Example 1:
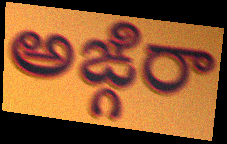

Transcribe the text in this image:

అఙ్గిరా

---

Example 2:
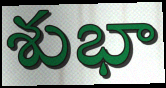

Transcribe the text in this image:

శుభా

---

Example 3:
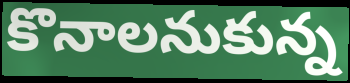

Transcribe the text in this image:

కొనాలనుకున్న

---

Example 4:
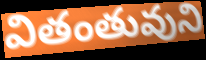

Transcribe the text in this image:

వితంతువుని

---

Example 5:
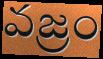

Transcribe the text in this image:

వజ్రం